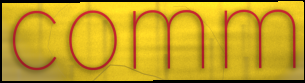
comm